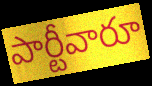
పార్టీవారూ